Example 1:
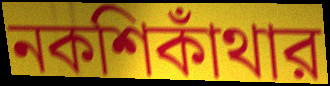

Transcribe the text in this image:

নকশিকাঁথার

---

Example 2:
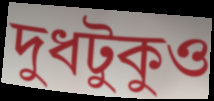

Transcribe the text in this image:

দুধটুকুও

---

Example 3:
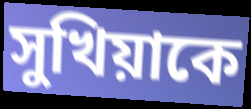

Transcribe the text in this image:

সুখিয়াকে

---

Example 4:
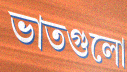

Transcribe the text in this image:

ভাতগুলো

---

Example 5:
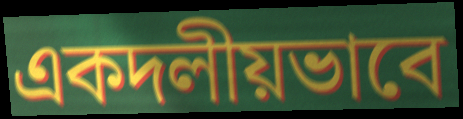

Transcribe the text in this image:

একদলীয়ভাবে